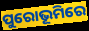
ପୁରୋଭୂମିରେ